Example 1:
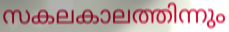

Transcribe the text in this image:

സകലകാലത്തിന്നും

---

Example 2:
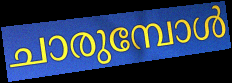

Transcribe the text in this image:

ചാരുമ്പോൾ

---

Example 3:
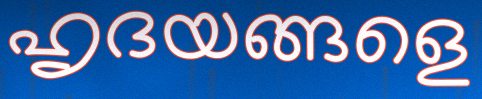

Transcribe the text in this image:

ഹൃദയങ്ങളെ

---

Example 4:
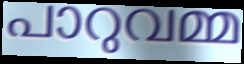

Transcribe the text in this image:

പാറുവമ്മ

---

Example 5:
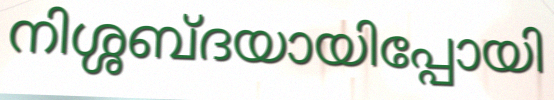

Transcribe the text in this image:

നിശ്ശബ്ദയായിപ്പോയി